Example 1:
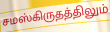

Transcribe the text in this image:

சமஸ்கிருதத்திலும்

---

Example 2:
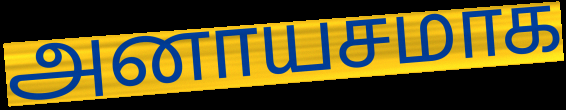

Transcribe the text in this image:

அனாயசமாக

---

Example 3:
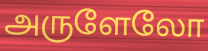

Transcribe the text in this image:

அருளேலோ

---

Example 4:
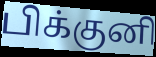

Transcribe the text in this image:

பிக்குனி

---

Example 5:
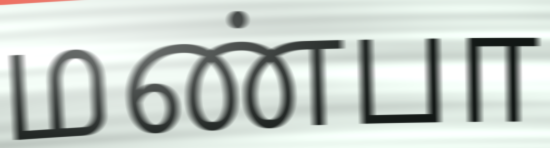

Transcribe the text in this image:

மண்பா